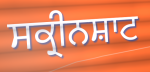
ਸਕ੍ਰੀਨਸ਼ਾਟ